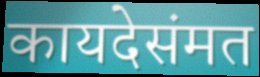
कायदेसंमत